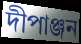
দীপাঞ্জন